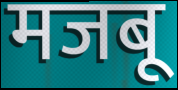
मजबू